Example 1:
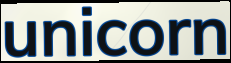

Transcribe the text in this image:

unicorn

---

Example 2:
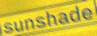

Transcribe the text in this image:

sunshade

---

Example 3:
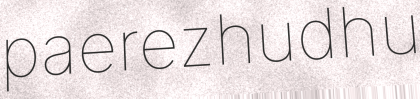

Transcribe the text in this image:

paerezhudhu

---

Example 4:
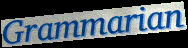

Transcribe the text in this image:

Grammarian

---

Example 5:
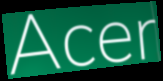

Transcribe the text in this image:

Acer